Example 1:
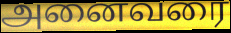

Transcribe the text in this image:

அனைவரை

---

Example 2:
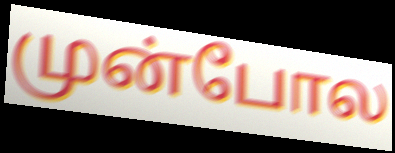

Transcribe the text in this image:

முன்போல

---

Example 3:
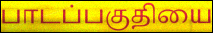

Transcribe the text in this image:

பாடப்பகுதியை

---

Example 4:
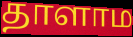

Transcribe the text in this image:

தாளாம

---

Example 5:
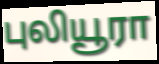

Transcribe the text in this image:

புலியூரா